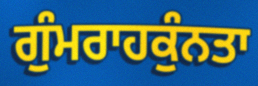
ਗੁੰਮਰਾਹਕੁੰਨਤਾ